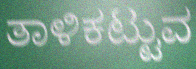
ತಾಳಿಕಟ್ಟುವ